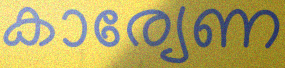
കാര്യേണ